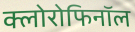
क्लोरोफिनॉल